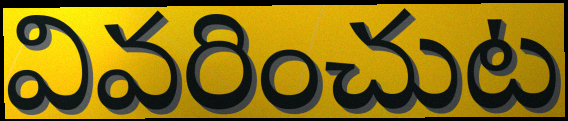
వివరించుట